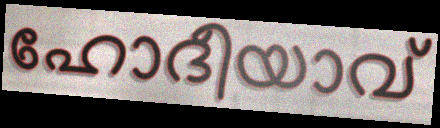
ഹോദീയാവ്